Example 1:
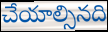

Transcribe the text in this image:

చేయాల్సినది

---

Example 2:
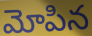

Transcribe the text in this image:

మోపిన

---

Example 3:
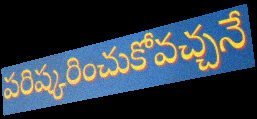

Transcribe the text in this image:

పరిష్కరించుకోవచ్చనే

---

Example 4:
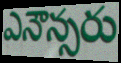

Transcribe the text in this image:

ఎనౌన్సరు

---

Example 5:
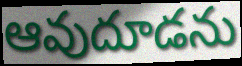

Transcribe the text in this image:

ఆవుదూడను